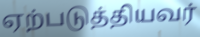
ஏற்படுத்தியவர்